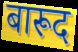
बारूद